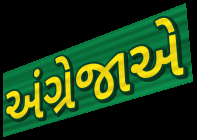
અંગ્રેજાએ